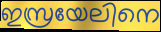
ഇസ്രയേലിനെ